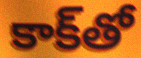
కాక్‌తో